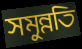
সমুন্নতি